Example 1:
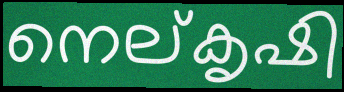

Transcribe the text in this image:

നെല്കൃഷി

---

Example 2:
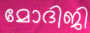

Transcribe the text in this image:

മോദിജി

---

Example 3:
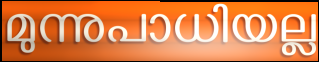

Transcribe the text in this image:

മുന്നുപാധിയല്ല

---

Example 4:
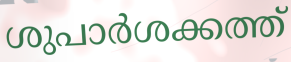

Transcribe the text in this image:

ശുപാർശക്കത്ത്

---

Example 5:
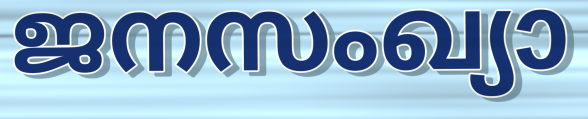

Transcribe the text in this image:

ജനസംഖ്യാ